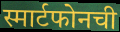
स्मार्टफोनची